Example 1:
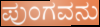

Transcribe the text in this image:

ಪುಂಗವನು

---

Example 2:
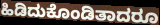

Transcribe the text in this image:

ಹಿಡಿದುಕೊಂಡಿತಾದರೂ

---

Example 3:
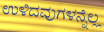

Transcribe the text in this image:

ಉಳಿದವುಗಳನ್ನೆಲ್ಲ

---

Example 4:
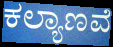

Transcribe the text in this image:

ಕಲ್ಯಾಣವೆ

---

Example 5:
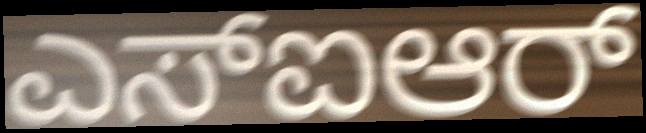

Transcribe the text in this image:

ಎಸ್ಐಆರ್